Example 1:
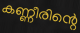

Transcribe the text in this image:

കണ്ണീരിന്റെ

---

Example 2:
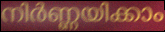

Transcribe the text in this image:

നിർണ്ണയിക്കാം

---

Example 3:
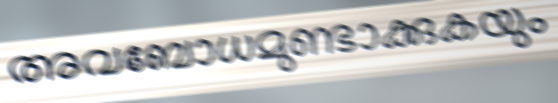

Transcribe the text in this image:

അവബോധമുണ്ടാക്കുകയും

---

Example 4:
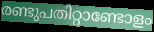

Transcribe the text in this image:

രണ്ടുപതിറ്റാണ്ടോളം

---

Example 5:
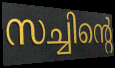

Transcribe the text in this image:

സച്ചിന്റെ